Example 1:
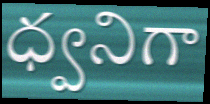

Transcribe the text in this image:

ధ్వనిగా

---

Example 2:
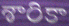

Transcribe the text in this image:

శారికా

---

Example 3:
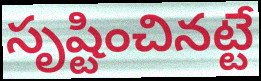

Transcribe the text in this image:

సృష్టించినట్టే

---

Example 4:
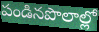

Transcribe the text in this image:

పండినపొలాల్లో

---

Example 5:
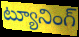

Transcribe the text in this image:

ట్యూనింగ్